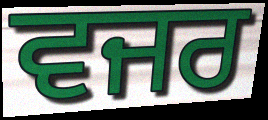
ਵਜਰ